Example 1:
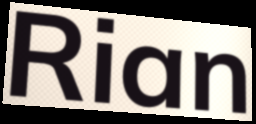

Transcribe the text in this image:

Rian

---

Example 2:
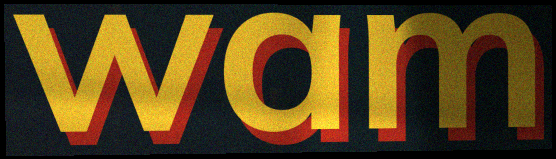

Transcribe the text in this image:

wam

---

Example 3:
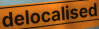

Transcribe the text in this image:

delocalised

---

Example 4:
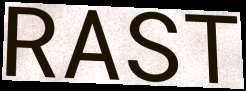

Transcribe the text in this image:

RAST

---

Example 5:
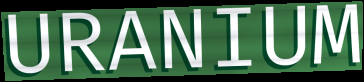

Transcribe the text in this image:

URANIUM